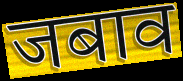
जबाव